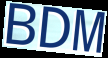
BDM